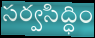
సర్వసిద్ధిం